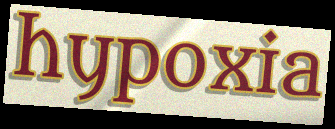
hypoxia